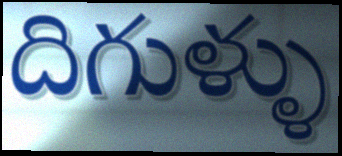
దిగుళ్ళు